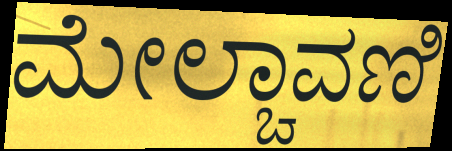
ಮೇಲ್ಚಾವಣಿ